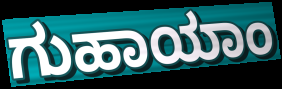
ಗುಹಾಯಾಂ